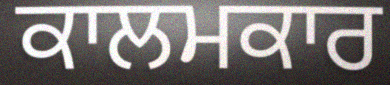
ਕਾਲਮਕਾਰ